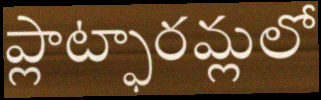
ప్లాట్ఫారమ్లలో